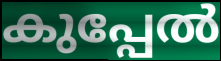
കുപ്പേൽ